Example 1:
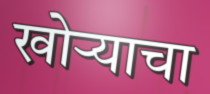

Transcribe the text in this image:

खोऱ्याचा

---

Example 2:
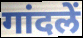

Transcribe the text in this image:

गांदलें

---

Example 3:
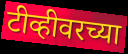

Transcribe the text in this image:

टीव्हीवरच्या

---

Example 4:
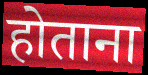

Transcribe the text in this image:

होताना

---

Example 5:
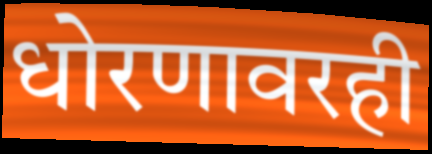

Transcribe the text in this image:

धोरणावरही